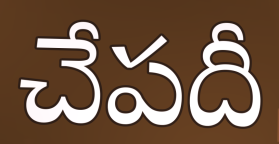
చేపదీ